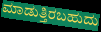
ಮಾಡುತ್ತಿರಬಹುದು